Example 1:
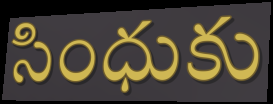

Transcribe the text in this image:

సింధుకు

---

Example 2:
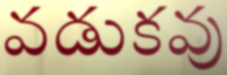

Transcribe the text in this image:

వడుకవు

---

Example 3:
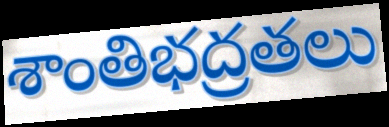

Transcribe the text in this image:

శాంతిభద్రతలు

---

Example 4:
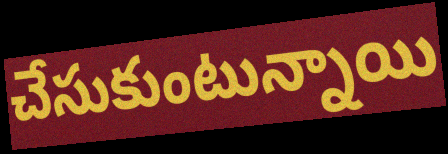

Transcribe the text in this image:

చేసుకుంటున్నాయి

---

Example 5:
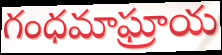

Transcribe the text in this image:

గంధమాఘ్రాయ